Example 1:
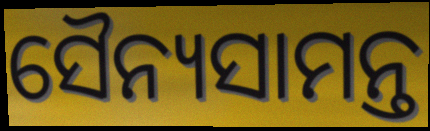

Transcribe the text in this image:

ସୈନ୍ୟସାମନ୍ତ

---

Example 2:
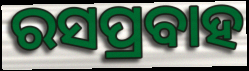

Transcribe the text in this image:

ରସପ୍ରବାହ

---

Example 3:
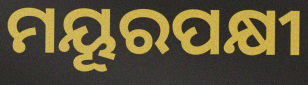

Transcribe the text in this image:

ମୟୂରପକ୍ଷୀ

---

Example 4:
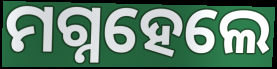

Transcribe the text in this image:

ମଗ୍ନହେଲେ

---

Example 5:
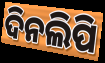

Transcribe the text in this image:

ଦିନଲିପି